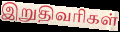
இறுதிவரிகள்